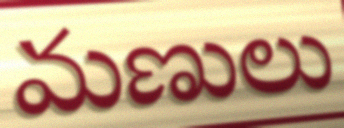
మణులు